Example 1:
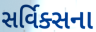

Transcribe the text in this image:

સર્વિક્સના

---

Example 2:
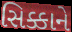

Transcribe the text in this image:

સિક્કાને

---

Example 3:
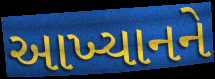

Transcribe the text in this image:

આખ્યાનને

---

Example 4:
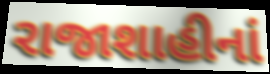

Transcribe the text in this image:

રાજાશાહીનાં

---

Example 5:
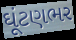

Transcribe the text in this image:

ઘૂંટણભર